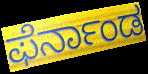
ಫೆರ್ನಾಂಡ